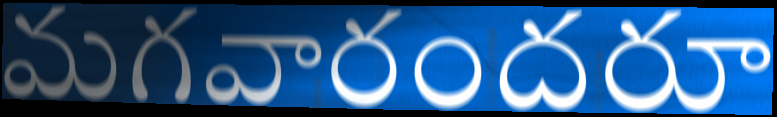
మగవారందరూ